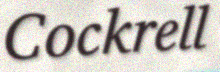
Cockrell